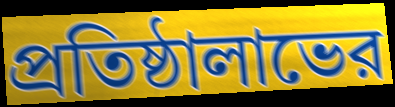
প্রতিষ্ঠালাভের